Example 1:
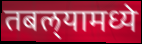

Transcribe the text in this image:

तबल्यामध्ये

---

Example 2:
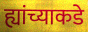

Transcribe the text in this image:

ह्यांच्याकडे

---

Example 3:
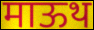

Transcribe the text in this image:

माऊथ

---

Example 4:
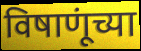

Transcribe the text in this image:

विषाणूंच्या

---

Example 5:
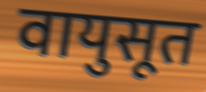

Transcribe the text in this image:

वायुसूत